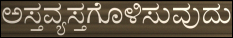
ಅಸ್ತವ್ಯಸ್ತಗೊಳಿಸುವುದು